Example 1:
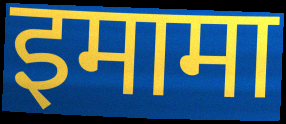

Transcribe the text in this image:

इमामा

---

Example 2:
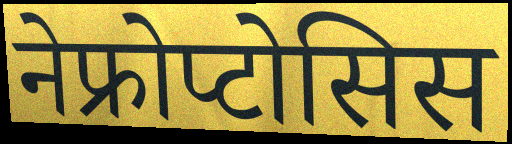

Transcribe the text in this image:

नेफ्रोप्टोसिस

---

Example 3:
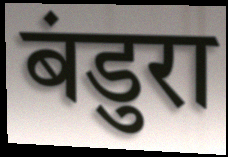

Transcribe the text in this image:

बंडुरा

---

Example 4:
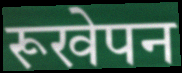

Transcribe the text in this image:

रूखेपन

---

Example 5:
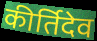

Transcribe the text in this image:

कीर्तिदेव